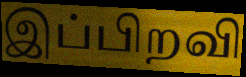
இப்பிறவி